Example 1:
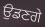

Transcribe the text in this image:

ਉਡਣਗੇ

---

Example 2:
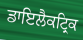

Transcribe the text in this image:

ਡਾਇਲੈਕਟ੍ਰਿਕ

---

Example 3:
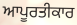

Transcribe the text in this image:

ਆਪੂਰਤੀਕਾਰ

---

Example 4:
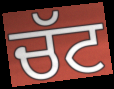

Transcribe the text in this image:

ਚੱਟ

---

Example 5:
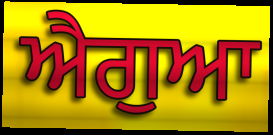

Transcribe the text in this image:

ਐਗੁਆ